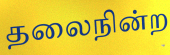
தலைநின்ற